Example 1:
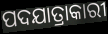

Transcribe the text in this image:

ପଦଯାତ୍ରାକାରୀ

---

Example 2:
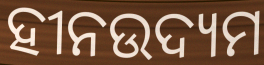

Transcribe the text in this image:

ହୀନଉଦ୍ୟମ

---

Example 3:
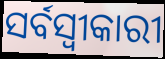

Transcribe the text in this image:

ସର୍ବସ୍ଵୀକାରୀ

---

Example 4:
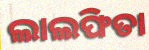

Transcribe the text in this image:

ଲାଲଫିତା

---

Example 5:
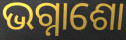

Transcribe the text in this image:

ଭଗ୍ନାଶୋ